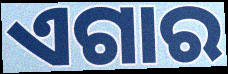
ଏଗାର